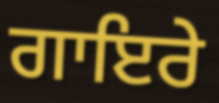
ਗਾਇਰੇ